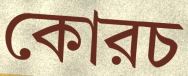
কোরচ